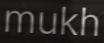
mukh